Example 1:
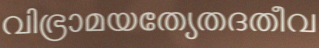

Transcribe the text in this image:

വിഭ്രാമയത്യേതദതീവ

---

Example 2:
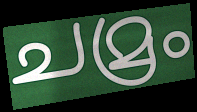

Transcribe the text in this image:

ചമ്രം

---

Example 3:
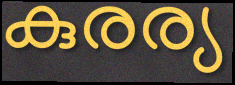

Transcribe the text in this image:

കുരര്യ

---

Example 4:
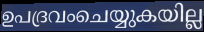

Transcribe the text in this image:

ഉപദ്രവംചെയ്യുകയില്ല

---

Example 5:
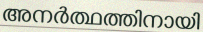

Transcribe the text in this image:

അനർത്ഥത്തിനായി